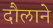
दौलाने